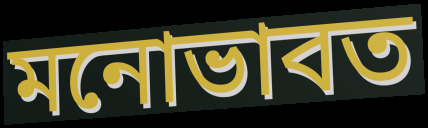
মনোভাবত